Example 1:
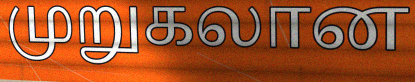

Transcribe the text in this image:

முறுகலான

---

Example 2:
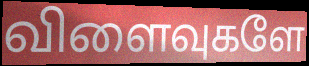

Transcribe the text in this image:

விளைவுகளே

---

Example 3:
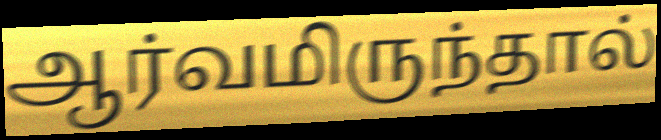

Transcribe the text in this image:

ஆர்வமிருந்தால்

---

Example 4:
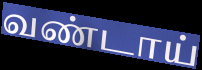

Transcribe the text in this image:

வண்டாய்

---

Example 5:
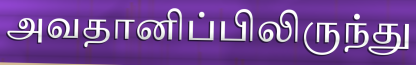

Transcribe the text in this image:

அவதானிப்பிலிருந்து